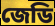
জেডি